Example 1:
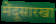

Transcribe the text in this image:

मेंदूसारखा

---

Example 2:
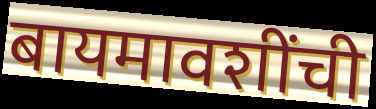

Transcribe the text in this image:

बायमावशींची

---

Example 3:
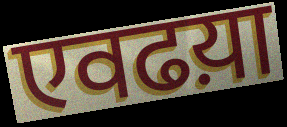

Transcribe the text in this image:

एवढय़ा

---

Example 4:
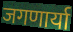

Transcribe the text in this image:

जगणार्या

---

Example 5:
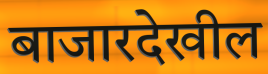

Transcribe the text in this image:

बाजारदेखील